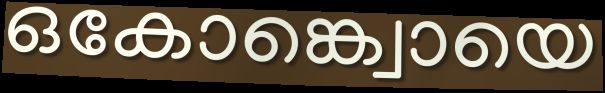
ഒകോങ്ക്വൊയെ